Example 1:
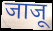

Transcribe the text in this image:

जाजू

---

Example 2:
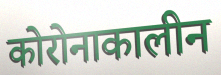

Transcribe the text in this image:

कोरोनाकालीन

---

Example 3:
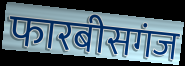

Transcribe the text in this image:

फारबीसगंज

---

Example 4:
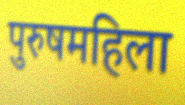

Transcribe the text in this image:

पुरुषमहिला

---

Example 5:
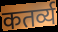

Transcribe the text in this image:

कतर्व्य